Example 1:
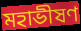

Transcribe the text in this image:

মহাভীষণ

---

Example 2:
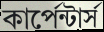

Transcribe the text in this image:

কার্পেন্টার্স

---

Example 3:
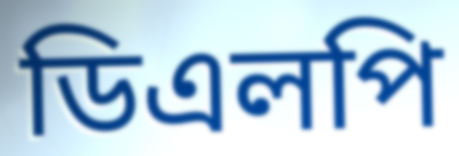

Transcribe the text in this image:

ডিএলপি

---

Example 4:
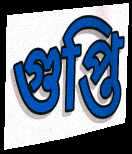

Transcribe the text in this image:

গুপ্তি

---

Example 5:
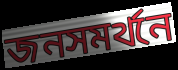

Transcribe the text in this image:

জনসমর্থনে